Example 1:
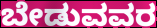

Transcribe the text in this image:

ಬೇಡುವವರ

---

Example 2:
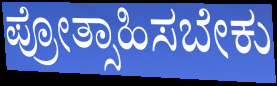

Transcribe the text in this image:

ಪ್ರೋತ್ಸಾಹಿಸಬೇಕು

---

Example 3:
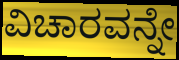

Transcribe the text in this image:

ವಿಚಾರವನ್ನೇ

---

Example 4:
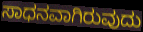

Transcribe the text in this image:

ಸಾಧನವಾಗಿರುವುದು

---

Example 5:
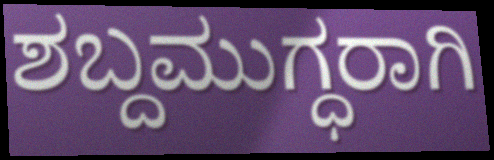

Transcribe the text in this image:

ಶಬ್ದಮುಗ್ಧರಾಗಿ